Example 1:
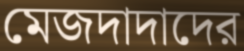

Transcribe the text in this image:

মেজদাদাদের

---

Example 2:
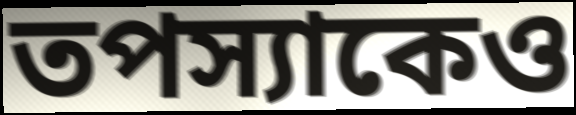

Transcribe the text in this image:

তপস্যাকেও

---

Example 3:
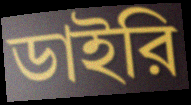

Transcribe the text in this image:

ডাইরি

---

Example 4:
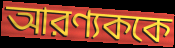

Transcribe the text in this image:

আরণ্যককে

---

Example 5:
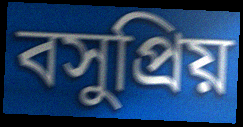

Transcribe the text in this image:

বসুপ্রিয়